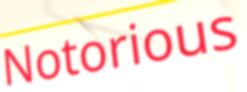
Notorious